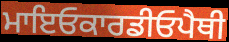
ਮਾਇਓਕਾਰਡੀਓਪੈਥੀ